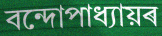
বন্দোপাধ্যায়ৰ